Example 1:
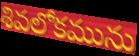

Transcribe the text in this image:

శివలోకమును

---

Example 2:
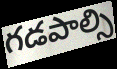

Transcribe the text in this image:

గడపాల్సి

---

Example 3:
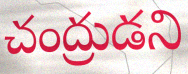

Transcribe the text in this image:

చంద్రుడని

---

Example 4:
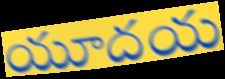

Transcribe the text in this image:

యూదయ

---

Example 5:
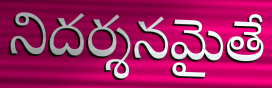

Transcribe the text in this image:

నిదర్శనమైతే